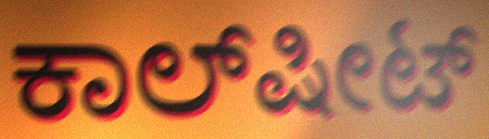
ಕಾಲ್‌ಷೀಟ್